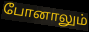
போனாலும்